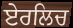
ਏਰਲਿਚ